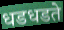
धडधडते